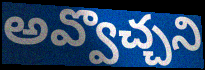
అవ్వొచ్చని